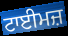
ਟਾਈਮਜ਼